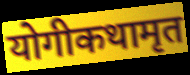
योगीकथामृत